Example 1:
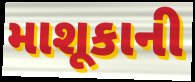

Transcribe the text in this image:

માશૂકાની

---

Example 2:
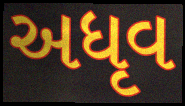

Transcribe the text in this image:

અધૃવ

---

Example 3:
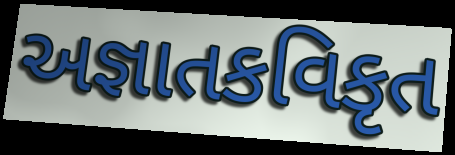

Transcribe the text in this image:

અજ્ઞાતકવિકૃત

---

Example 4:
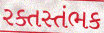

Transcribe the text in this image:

રક્તસ્તંભક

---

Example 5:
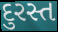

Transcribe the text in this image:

દુરસ્ત